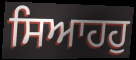
ਸਿਆਹਹੁ